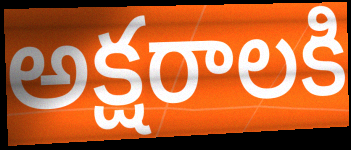
అక్షరాలకి